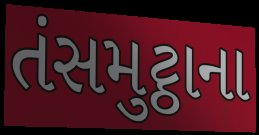
તંસમુટ્ઠાના